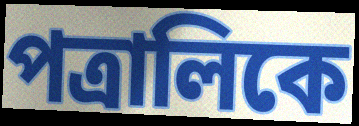
পত্রালিকে